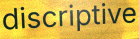
discriptive